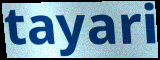
tayari